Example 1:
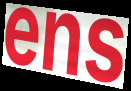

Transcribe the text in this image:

ens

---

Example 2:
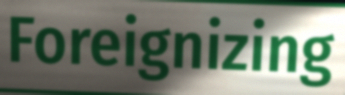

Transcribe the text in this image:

Foreignizing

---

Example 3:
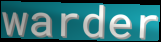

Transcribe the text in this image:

warder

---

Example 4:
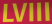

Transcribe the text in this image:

LVIII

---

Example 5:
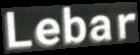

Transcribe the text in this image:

Lebar